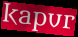
kapur